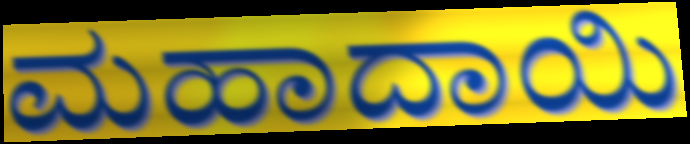
ಮಹಾದಾಯಿ